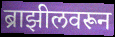
ब्राझीलवरून